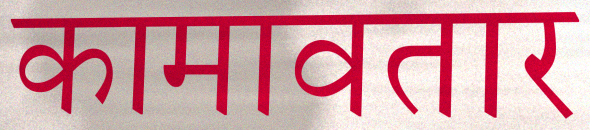
कामावतार